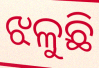
ଝଳୁଛି